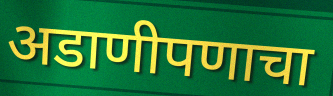
अडाणीपणाचा